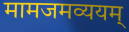
मामजमव्ययम्